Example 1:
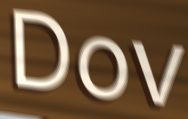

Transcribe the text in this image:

Dov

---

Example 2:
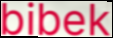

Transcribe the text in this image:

bibek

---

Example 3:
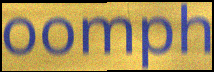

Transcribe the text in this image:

oomph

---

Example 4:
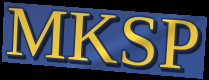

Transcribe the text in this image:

MKSP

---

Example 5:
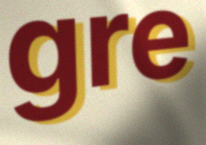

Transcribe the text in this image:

gre